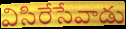
విసిరేసేవాడు